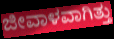
ಜೀವಾಳವಾಗಿತ್ತು